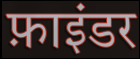
फ़ाइंडर